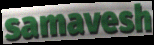
samavesh